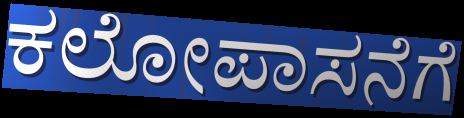
ಕಲೋಪಾಸನೆಗೆ